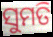
ସୁମତି